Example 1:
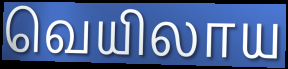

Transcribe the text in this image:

வெயிலாய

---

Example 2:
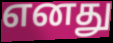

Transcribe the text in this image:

எனது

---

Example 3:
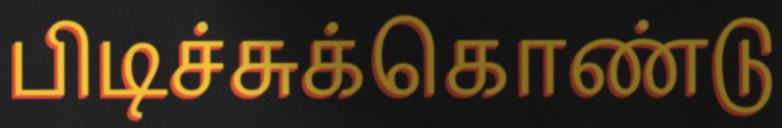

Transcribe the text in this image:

பிடிச்சுக்கொண்டு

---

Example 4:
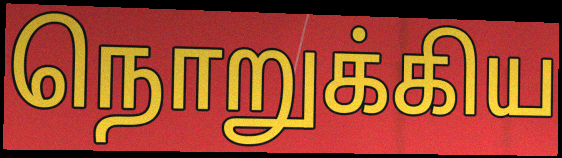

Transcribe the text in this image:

நொறுக்கிய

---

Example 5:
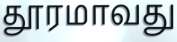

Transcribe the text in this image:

தூரமாவது